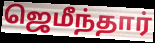
ஜெமீந்தார்